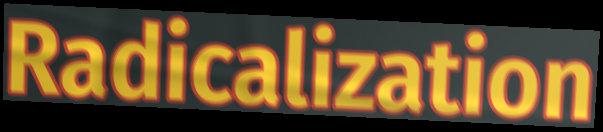
Radicalization